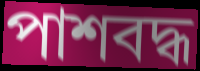
পাশবদ্ধ